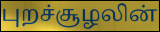
புறச்சூழலின்